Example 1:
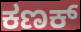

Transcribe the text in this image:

ಕಣಕ್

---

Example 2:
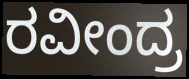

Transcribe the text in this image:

ರವೀಂದ್ರ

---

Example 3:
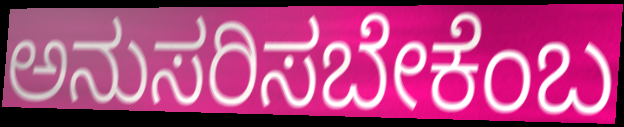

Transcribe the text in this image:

ಅನುಸರಿಸಬೇಕೆಂಬ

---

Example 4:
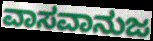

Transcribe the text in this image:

ವಾಸವಾನುಜ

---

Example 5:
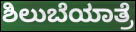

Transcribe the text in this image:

ಶಿಲುಬೆಯಾತ್ರೆ